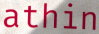
athin